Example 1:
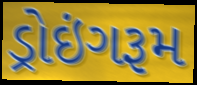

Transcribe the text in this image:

ડ્રોઇંગરૂમ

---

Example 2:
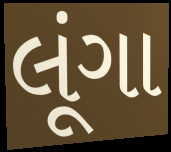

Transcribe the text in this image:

લૂંગા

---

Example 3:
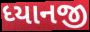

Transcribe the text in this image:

ધ્યાનજી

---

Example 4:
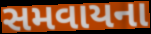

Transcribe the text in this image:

સમવાયના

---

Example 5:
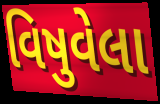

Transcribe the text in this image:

વિષુવેલા